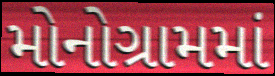
મોનોગ્રામમાં